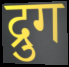
द्रुग